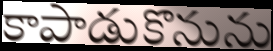
కాపాడుకొనును